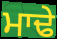
ਮਾਢੇ